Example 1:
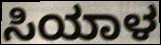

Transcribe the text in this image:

ಸಿಯಾಳ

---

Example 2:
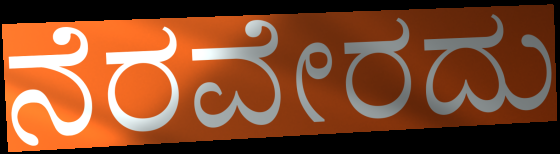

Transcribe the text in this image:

ನೆರವೇರದು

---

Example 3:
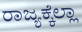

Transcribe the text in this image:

ರಾಜ್ಯಕ್ಕೆಲ್ಲಾ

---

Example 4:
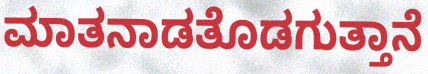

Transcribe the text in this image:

ಮಾತನಾಡತೊಡಗುತ್ತಾನೆ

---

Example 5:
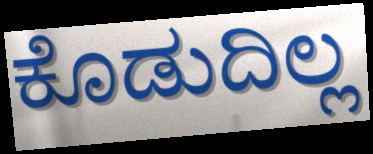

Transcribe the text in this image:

ಕೊಡುದಿಲ್ಲ